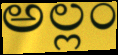
అల్లం